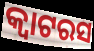
କ୍ୱାଟରସ